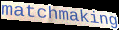
matchmaking